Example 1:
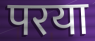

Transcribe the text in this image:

परया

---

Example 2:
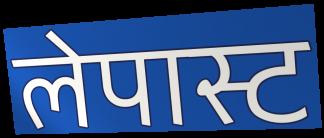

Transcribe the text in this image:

लेपास्ट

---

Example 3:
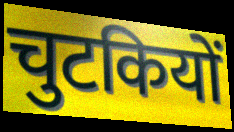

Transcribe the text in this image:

चुटकियों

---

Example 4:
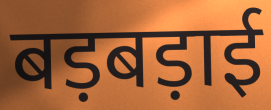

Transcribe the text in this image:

बड़बड़ाई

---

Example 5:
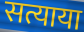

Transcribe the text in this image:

सत्याया